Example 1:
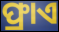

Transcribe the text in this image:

ଫ୍ରାଏ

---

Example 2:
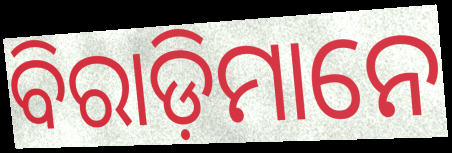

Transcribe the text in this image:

ବିରାଡ଼ିମାନେ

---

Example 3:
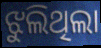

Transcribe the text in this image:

ଝୁଲିଥିଲା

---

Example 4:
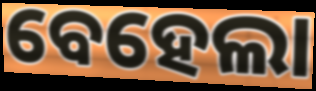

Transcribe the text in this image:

ବେହେଲା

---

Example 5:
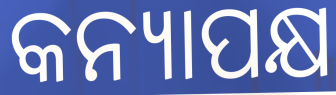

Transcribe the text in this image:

କନ୍ଯାପକ୍ଷ